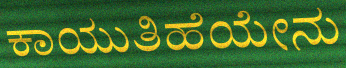
ಕಾಯುತಿಹೆಯೇನು